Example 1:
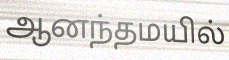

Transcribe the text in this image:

ஆனந்தமயில்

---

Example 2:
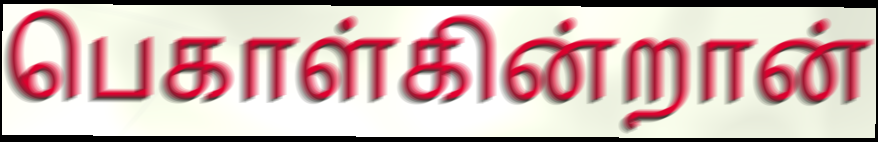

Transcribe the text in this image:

பெகாள்கின்றான்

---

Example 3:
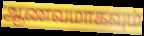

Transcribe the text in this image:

ஆணவமாகவும்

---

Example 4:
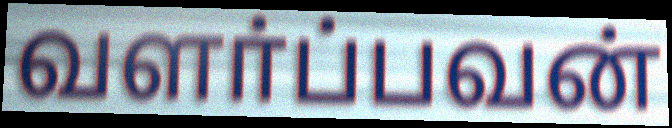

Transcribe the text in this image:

வளர்ப்பவன்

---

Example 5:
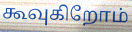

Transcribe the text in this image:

கூவுகிறோம்